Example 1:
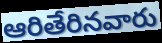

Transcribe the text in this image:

ఆరితేరినవారు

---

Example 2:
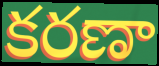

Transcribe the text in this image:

కరణా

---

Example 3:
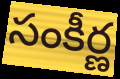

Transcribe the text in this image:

సంకీర్ణ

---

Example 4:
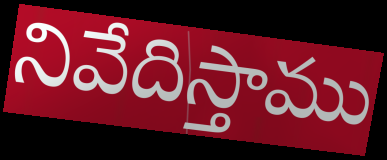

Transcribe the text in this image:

నివేదిస్తాము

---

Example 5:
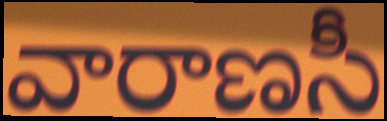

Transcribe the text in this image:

వారాణసీ